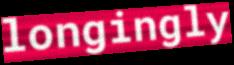
longingly